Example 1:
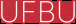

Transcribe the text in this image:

UFBU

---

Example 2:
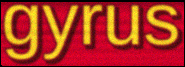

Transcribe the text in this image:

gyrus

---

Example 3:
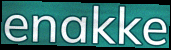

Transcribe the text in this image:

enakke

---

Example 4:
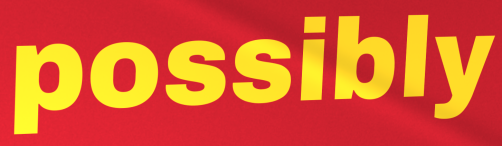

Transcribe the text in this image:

possibly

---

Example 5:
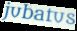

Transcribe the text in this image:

jubatus